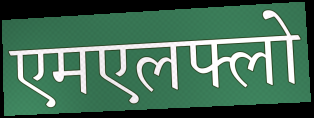
एमएलफ्लो